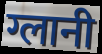
ग्लानी